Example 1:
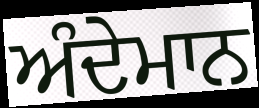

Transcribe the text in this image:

ਅੰਦੇਮਾਨ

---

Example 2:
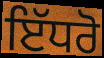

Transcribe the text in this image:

ਇੱਧਰੋ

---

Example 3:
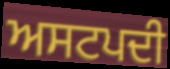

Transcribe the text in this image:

ਅਸਟਪਦੀ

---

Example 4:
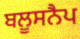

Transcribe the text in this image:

ਬਲੂਸਨੈਪ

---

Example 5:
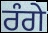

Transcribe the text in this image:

ਰੰਗੇ